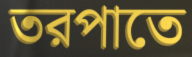
তরপাতে